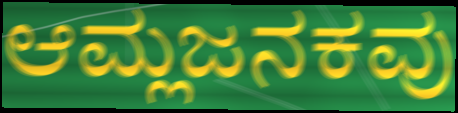
ಆಮ್ಲಜನಕವು